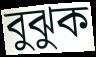
বুঝুক